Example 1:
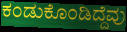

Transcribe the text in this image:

ಕಂಡುಕೊಂಡಿದ್ದೆವು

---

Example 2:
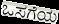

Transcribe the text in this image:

ಒಸಗೆಯ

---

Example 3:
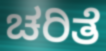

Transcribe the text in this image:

ಚರಿತೆ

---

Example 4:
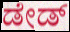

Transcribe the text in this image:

ಡೇಡ್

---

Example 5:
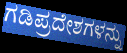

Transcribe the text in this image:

ಗಡಿಪ್ರದೇಶಗಳನ್ನು